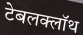
टेबलक्लॉथ